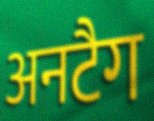
अनटैग